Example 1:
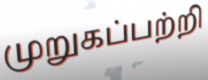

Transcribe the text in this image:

முறுகப்பற்றி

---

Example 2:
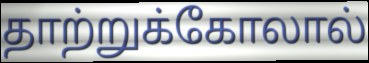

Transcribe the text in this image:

தாற்றுக்கோலால்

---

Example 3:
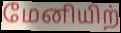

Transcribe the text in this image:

மேனியிற்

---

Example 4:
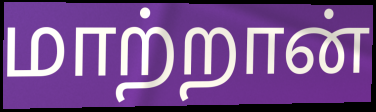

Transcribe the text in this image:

மாற்றான்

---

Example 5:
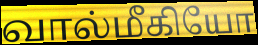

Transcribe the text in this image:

வால்மீகியோ